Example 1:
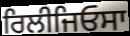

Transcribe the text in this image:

ਰਿਲੀਜਿਓਸਾ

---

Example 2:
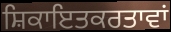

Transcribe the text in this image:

ਸ਼ਿਕਾਇਤਕਰਤਾਵਾਂ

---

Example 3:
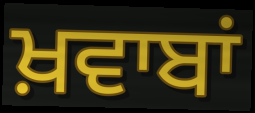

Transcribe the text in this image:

ਖ਼ਵਾਬਾਂ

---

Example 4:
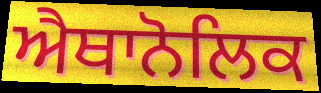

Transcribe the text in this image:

ਐਥਾਨੋਲਿਕ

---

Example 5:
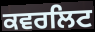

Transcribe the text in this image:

ਕਵਰਲਿਟ